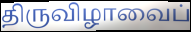
திருவிழாவைப்